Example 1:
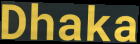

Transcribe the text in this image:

Dhaka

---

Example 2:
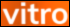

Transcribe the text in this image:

vitro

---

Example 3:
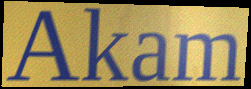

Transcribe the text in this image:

Akam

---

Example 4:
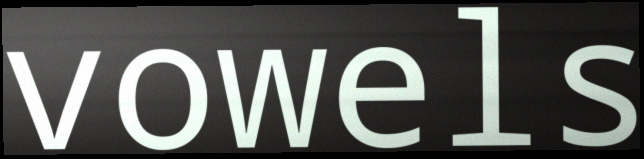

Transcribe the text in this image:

vowels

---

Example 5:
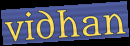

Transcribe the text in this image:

vidhan